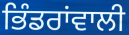
ਭਿੰਡਰਾਂਵਾਲੀ